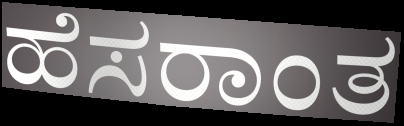
ಹೆಸರಾಂತ